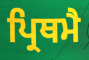
ਪ੍ਰਿਥਮੈ